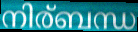
നിര്ബന്ധ